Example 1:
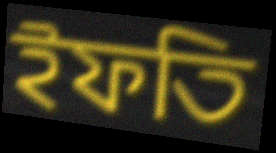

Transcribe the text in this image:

ইফতি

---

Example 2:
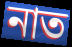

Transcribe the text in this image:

নাত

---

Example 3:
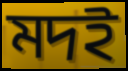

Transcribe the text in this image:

মদই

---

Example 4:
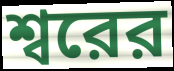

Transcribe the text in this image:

শ্বরের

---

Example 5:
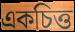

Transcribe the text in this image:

একচিত্ত